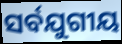
ସର୍ବଯୁଗୀୟ